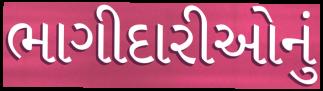
ભાગીદારીઓનું